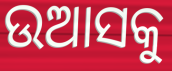
ଉଆସକୁ